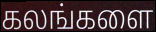
கலங்களை